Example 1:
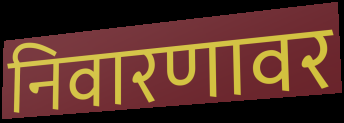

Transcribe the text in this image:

निवारणावर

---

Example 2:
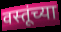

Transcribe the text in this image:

वस्तूंच्या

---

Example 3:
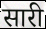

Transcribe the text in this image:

सारी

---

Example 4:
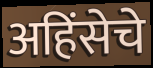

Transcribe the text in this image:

अहिंसेचे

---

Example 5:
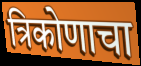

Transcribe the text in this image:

त्रिकोणाचा